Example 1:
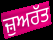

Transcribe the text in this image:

ਜ਼ੁਅਰੱਤ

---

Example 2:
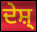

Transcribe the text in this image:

ਦੇਸ਼੍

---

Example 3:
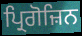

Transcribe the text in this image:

ਪ੍ਰਿਗੋਜ਼ਿਨ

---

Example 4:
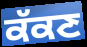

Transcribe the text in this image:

ਕੱਕਣ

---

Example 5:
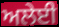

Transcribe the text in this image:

ਅਲੇਈ